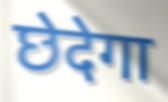
छेदेगा